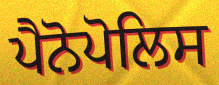
ਪੈਨੋਪੋਲਿਸ